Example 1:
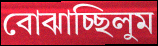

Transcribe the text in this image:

বোঝাচ্ছিলুম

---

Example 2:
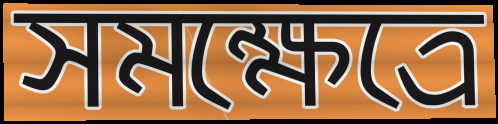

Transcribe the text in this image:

সমক্ষেত্রে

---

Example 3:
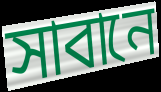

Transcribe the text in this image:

সাবানে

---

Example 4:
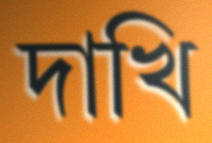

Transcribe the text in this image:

দাখি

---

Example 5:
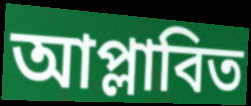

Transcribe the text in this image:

আপ্লাবিত